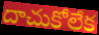
దాచుకోలేక